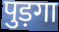
पुड़गा